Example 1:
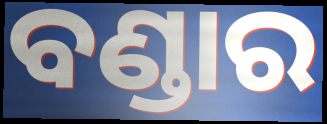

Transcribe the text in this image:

ବଣ୍ଡାର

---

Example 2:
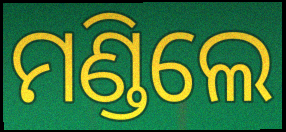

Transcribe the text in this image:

ମଣ୍ଡିଲେ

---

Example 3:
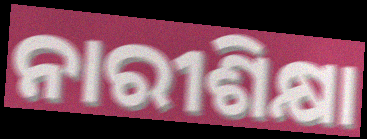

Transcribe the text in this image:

ନାରୀଶିକ୍ଷା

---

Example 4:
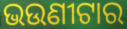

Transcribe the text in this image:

ଭଉଣୀଟାର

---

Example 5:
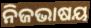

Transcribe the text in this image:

ନିଜଭାଷୟ